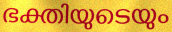
ഭക്തിയുടെയും